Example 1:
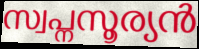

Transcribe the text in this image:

സ്വപ്നസൂര്യൻ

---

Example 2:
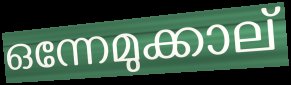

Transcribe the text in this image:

ഒന്നേമുക്കാല്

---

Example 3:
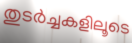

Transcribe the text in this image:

തുടർച്ചകളിലൂടെ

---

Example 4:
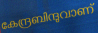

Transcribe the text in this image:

കേന്ദ്രബിന്ദുവാണ്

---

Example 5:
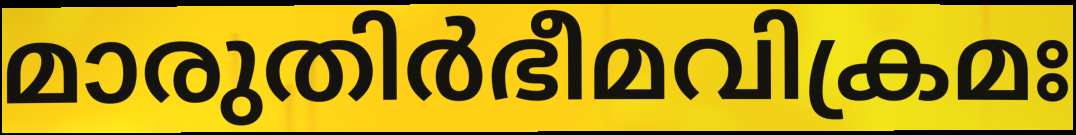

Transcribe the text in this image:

മാരുതിർഭീമവിക്രമഃ